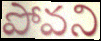
పోవని